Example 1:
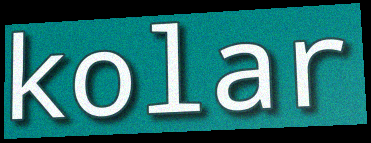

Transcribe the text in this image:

kolar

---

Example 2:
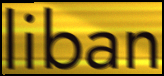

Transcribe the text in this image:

liban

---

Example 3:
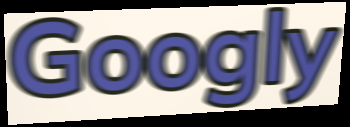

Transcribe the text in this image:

Googly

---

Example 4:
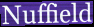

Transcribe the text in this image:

Nuffield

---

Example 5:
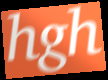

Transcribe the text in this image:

hgh